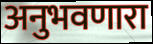
अनुभवणारा